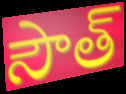
సౌత్